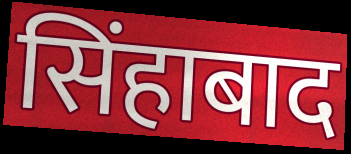
सिंहाबाद